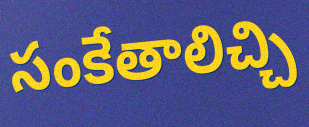
సంకేతాలిచ్చి